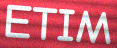
ETIM